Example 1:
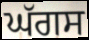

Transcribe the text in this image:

ਘੱਗਸ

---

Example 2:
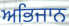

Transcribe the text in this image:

ਅਭਿਜਾਨ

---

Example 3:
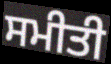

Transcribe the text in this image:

ਸਮੀਤੀ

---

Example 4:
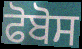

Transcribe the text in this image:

ਫੋਬੋਸ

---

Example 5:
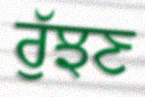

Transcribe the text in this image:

ਰੁੱਝਣ